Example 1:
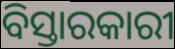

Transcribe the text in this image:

ବିସ୍ତାରକାରୀ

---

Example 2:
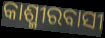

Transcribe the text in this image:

କାଶ୍ମୀରବାସୀ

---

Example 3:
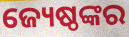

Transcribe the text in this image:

ଜ୍ୟେଷ୍ଠଙ୍କର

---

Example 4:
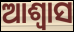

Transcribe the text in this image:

ଆଶ୍ୱାସ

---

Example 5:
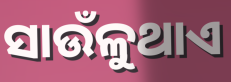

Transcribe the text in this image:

ସାଉଁଳୁଥାଏ